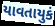
યાવતાયુકં